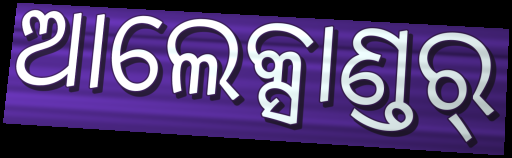
ଆଲେକ୍ସାଣ୍ଡର୍